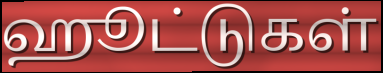
ஹூட்டுகள்